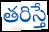
తరిస్తే